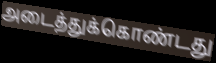
அடைத்துக்கொண்டது